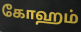
கோஹம்